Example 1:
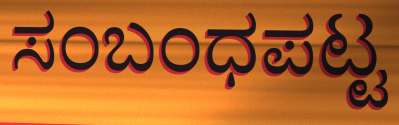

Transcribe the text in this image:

ಸಂಬಂಧಪಟ್ಟ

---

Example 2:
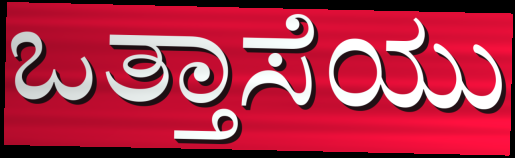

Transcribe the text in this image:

ಒತ್ತಾಸೆಯು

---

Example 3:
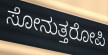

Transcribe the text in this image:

ಸೋನುತ್ತರೋಪಿ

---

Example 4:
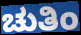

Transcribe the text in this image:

ಚುತಿಂ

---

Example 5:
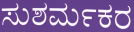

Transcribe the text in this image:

ಸುಶರ್ಮಕರ